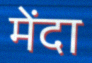
मेंदा